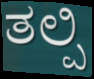
ತಲ್ಪಿ